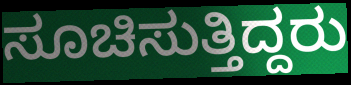
ಸೂಚಿಸುತ್ತಿದ್ದರು